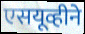
एसयूव्हीने